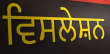
ਵਿਸਲੇਸ਼ਨ